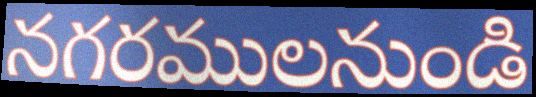
నగరములనుండి